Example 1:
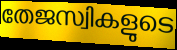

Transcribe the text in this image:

തേജസ്വികളുടെ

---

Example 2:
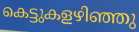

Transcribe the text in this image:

കെട്ടുകളഴിഞ്ഞു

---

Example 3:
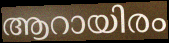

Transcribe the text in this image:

ആറായിരം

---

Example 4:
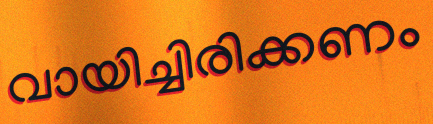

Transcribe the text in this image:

വായിച്ചിരിക്കണം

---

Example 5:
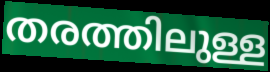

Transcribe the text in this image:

തരത്തിലുള്ള